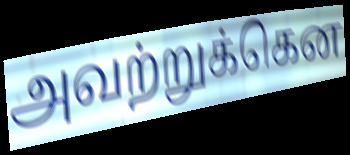
அவற்றுக்கென